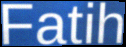
Fatih